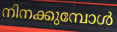
നിനക്കുമ്പോൾ